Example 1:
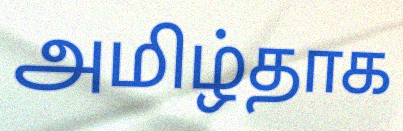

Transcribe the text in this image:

அமிழ்தாக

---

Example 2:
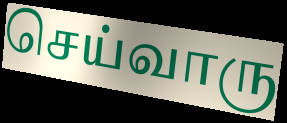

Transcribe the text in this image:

செய்வாரு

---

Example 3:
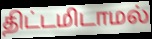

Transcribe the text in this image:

திட்டமிடாமல்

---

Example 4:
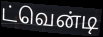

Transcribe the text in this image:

ட்வென்டி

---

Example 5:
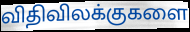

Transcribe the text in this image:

விதிவிலக்குகளை